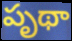
పృథా